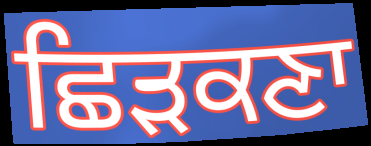
ਛਿੜਕਣਾ